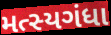
મત્સ્યગંધા